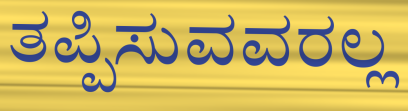
ತಪ್ಪಿಸುವವರಲ್ಲ